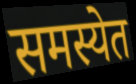
समस्येत